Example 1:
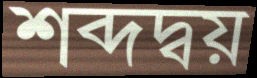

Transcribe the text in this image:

শব্দদ্বয়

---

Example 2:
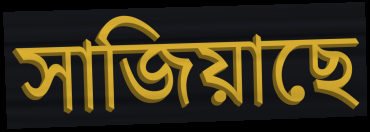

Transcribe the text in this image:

সাজিয়াছে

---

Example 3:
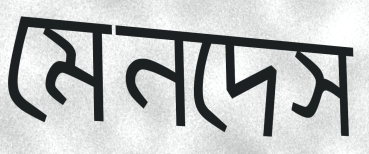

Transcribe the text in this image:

মেনদেস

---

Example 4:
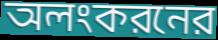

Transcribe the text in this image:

অলংকরনের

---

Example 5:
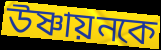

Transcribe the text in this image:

উষ্ণায়নকে